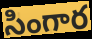
సింగార